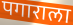
पगाराला